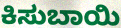
ಕಿಸುಬಾಯಿ